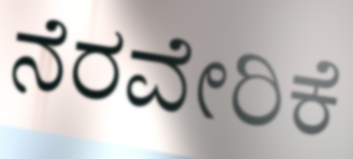
ನೆರವೇರಿಕೆ